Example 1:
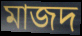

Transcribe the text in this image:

মাজদ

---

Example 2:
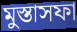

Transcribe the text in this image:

মুস্তাসফা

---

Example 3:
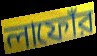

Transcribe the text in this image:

লাফোঁর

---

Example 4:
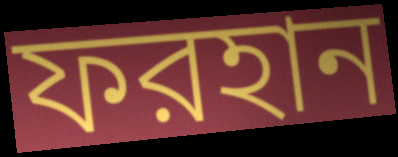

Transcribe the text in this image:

ফরহান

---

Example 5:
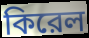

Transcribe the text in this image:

কিরেল